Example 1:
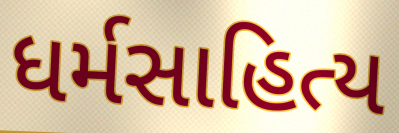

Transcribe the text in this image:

ધર્મસાહિત્ય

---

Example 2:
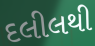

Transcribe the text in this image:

દલીલથી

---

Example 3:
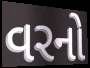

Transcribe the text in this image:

વરનો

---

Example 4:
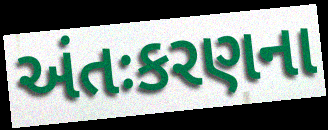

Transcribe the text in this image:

અંતઃકરણના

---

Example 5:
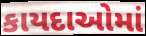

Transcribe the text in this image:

કાયદાઓમાં